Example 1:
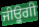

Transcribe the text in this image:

ਜੀਊਗੀ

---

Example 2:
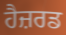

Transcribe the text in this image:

ਹੈਜ਼ਰਡ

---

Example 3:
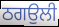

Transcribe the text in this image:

ਠਗਉਲੀ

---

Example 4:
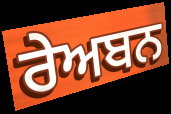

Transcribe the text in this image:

ਰੇਅਬਨ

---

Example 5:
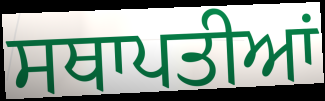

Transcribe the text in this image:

ਸਥਾਪਤੀਆਂ